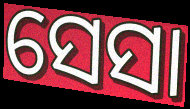
ସେସା